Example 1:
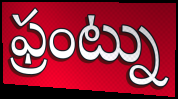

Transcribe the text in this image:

ఫ్రంట్ను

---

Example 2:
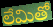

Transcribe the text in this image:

లేమితో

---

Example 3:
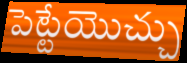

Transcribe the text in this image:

పెట్టేయొచ్చు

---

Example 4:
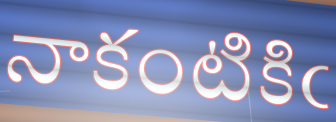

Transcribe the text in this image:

నాకంటికిఁ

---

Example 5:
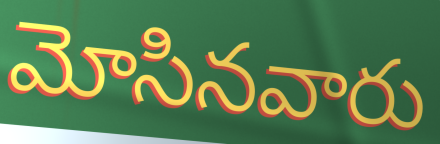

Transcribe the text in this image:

మోసినవారు